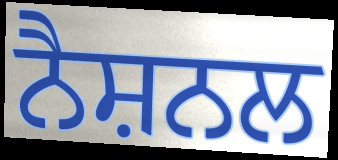
ਨੈਸ਼ਨਲ